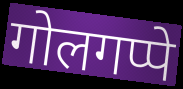
गोलगप्पे